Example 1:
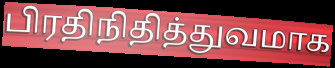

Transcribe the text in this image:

பிரதிநிதித்துவமாக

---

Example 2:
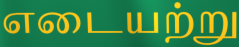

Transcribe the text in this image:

எடையற்று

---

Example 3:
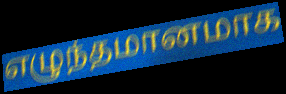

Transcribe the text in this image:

எழுந்தமானமாக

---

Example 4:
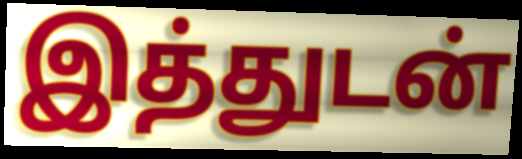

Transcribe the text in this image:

இத்துடன்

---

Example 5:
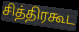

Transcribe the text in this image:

சித்திரகூட